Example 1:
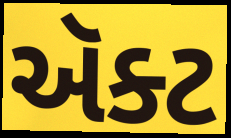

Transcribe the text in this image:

ઍૅક્ટ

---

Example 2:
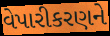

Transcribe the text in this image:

વેપારીકરણને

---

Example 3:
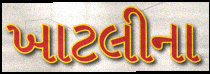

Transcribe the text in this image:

ખાટલીના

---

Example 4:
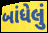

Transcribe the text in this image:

બાંધેલું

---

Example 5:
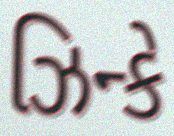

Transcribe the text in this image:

ઝિન્કે